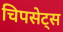
चिपसेट्स